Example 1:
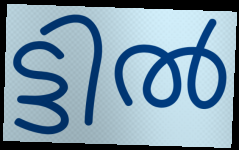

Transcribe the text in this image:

ട്ടിൽ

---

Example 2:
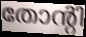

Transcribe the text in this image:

തോന്റി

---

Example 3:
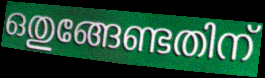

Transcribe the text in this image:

ഒതുങ്ങേണ്ടതിന്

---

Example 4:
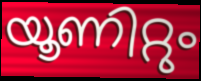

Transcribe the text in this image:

യൂണിറ്റും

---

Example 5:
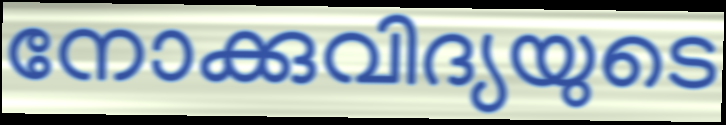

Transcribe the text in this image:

നോക്കുവിദ്യയുടെ